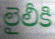
లైలీకి